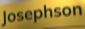
Josephson